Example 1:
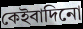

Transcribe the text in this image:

কেইবাদিনো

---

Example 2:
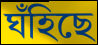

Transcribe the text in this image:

ঘঁহিছে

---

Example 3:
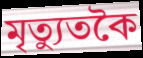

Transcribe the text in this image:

মৃত্যুতকৈ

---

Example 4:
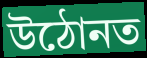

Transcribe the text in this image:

উঠোনত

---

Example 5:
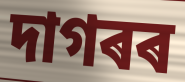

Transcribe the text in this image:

দাগৰৰ